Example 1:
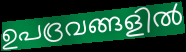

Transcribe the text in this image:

ഉപദ്രവങ്ങളിൽ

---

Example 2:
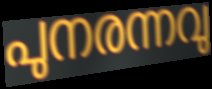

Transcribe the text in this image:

പുനരന്നവു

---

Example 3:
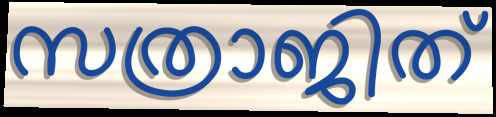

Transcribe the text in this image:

സത്രാജിത്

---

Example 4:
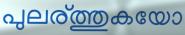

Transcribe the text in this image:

പുലര്ത്തുകയോ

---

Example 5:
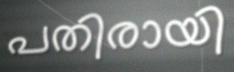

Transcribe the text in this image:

പതിരായി